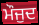
ਮੌਜੁਦ